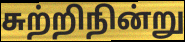
சுற்றிநின்று